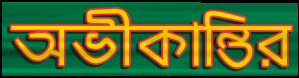
অভীকান্তির